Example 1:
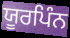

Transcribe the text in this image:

ਯੂਰਪਿੰਨ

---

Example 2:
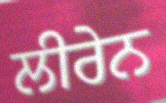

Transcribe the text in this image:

ਲੀਰੇਨ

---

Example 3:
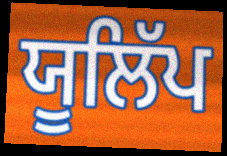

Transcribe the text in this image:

ਯੂਲਿੱਪ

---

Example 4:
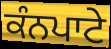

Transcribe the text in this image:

ਕੰਨਪਾਟੇ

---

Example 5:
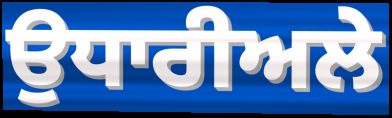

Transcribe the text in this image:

ਉਧਾਰੀਅਲੇ